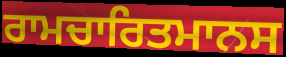
ਰਾਮਚਾਰਿਤਮਾਨਸ